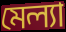
মেল্যা